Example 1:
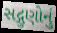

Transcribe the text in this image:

સદ્ગુણોનું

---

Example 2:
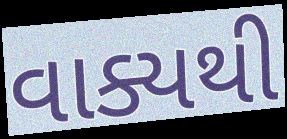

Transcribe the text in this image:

વાક્યથી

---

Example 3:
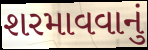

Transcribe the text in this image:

શરમાવવાનું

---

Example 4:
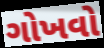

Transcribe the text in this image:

ગોખવો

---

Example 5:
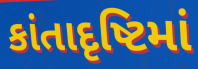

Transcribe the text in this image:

કાંતાદૃષ્ટિમાં